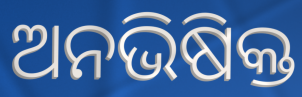
ଅନଭିଷିକ୍ତ